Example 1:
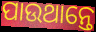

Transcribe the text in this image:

ପାଉଥାନ୍ତେ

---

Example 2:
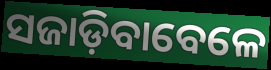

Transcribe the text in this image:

ସଜାଡ଼ିବାବେଳେ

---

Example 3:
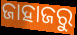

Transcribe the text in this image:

ଜାହାଜରୁ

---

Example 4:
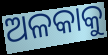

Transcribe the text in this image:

ଅଳକାକୁ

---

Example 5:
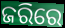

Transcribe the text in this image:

ଜରିରେ